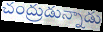
చంద్రుడున్నాడు